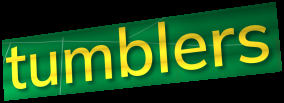
tumblers